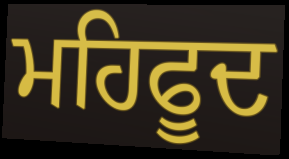
ਮਹਿਫੂਦ